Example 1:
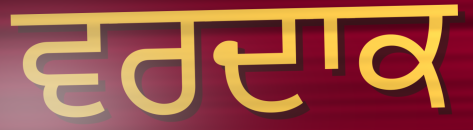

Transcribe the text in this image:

ਵਰਦਾਕ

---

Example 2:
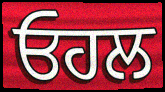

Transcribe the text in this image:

ਓਹਲ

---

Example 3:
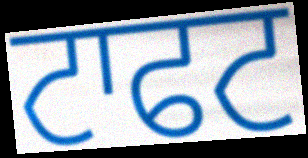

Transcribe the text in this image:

ਟਾਫਟ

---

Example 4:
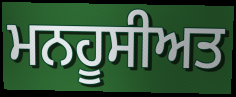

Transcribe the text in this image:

ਮਨਹੂਸੀਅਤ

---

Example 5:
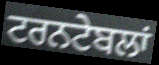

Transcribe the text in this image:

ਟਰਨਟੇਬਲਾਂ